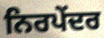
ਨਿਰਪੇਂਦਰ